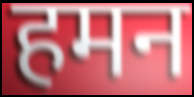
हमन